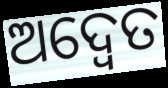
ଅଦ୍ଵେତ